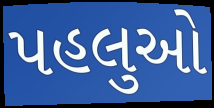
પહલુઓ